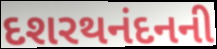
દશરથનંદનની